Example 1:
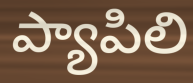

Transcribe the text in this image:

ప్యాపిలి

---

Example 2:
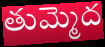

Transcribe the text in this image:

తుమ్మెద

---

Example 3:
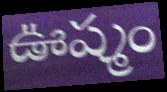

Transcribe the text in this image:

ఊష్మం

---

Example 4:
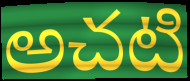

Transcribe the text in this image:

అచటి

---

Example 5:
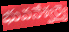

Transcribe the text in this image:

భువనేశ్వర్యై